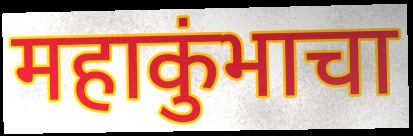
महाकुंभाचा